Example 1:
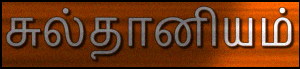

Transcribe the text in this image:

சுல்தானியம்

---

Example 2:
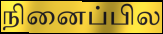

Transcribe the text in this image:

நினைப்பில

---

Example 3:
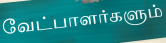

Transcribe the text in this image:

வேட்பாளர்களும்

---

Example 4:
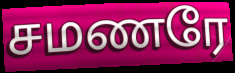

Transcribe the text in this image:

சமணரே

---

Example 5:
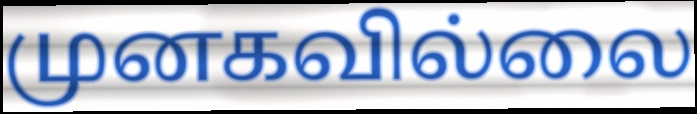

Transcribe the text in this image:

முனகவில்லை